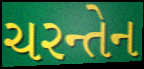
ચરન્તેન